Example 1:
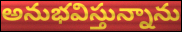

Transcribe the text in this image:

అనుభవిస్తున్నాను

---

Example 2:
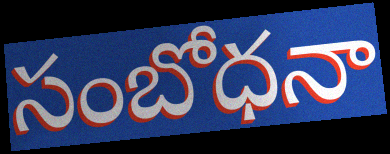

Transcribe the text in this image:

సంబోధనా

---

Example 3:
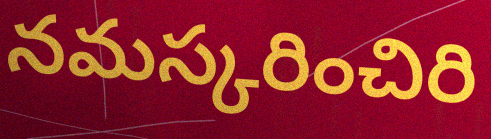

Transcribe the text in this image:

నమస్కరించిరి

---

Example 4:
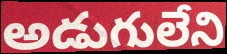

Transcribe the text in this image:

అడుగులేని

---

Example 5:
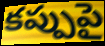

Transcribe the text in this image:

కప్పుపై